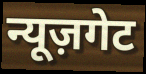
न्यूज़गेट